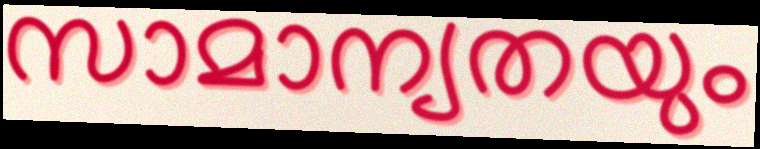
സാമാന്യതയും